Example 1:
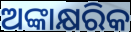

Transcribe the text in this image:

ଅଙ୍କାକ୍ଷରିକ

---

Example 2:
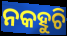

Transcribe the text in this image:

ନକହୁଚି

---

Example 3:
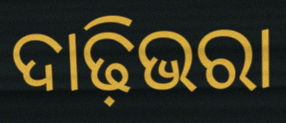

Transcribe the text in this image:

ଦାଢ଼ିଭରା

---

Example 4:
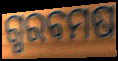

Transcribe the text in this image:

ଗ୍ଧରବମଷ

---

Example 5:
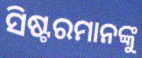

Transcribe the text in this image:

ସିଷ୍ଟରମାନଙ୍କୁ